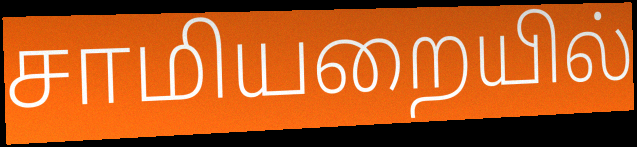
சாமியறையில்